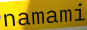
namami